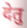
देतु